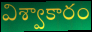
విశ్వాకారం